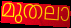
മുതലാ